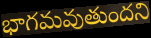
భాగమవుతుందని